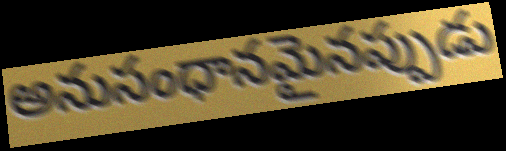
అనుసంధానమైనప్పుడు